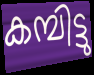
കമ്പിട്ടു